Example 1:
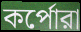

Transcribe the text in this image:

কর্পোরা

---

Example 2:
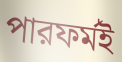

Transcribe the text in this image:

পারফর্মই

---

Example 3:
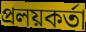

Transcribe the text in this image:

প্রলয়কর্তা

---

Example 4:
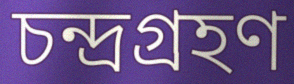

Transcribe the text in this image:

চন্দ্রগ্রহণ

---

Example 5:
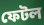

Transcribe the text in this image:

ফেটল